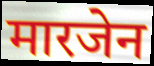
मारजेन